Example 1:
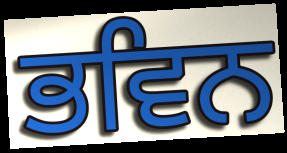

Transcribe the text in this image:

ਭਵਿਨ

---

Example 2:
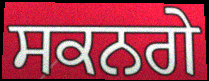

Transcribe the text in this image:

ਸਕਨਗੇ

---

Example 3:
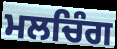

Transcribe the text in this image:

ਮਲਚਿੰਗ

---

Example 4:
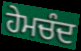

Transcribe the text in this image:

ਹੇਮਚੰਦ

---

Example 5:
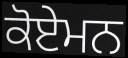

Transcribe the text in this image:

ਕੋਏਮਨ